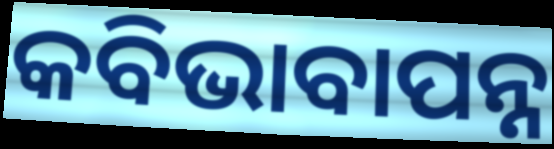
କବିଭାବାପନ୍ନ